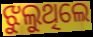
ଝୁଲୁଥିଲେ